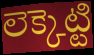
లెక్కెట్టి